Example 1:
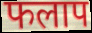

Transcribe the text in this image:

फलाप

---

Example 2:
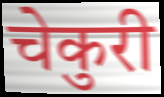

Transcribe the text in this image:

चेकुरी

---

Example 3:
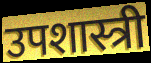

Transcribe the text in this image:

उपशास्त्री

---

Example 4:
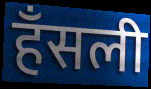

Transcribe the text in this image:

हँसली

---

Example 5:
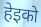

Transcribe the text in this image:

हेइको